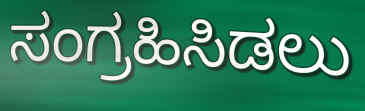
ಸಂಗ್ರಹಿಸಿಡಲು